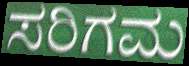
ಸರಿಗಮ